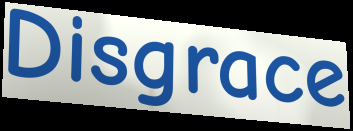
Disgrace